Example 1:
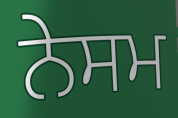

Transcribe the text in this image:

ਨੇਸਮ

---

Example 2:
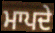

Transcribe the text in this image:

ਮਾਪਦੇ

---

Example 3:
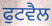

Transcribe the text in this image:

ਫੁਟਵੈਲ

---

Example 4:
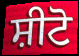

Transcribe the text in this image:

ਸ਼ੀਟੋ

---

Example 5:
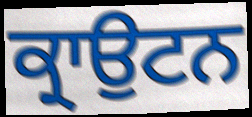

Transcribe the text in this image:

ਕ੍ਰਾਉਟਨ